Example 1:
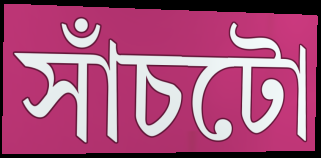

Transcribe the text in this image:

সাঁচটো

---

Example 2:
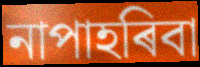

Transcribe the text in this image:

নাপাহৰিবা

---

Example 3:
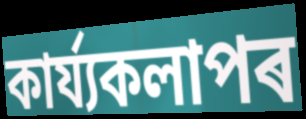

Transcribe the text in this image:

কাৰ্য্যকলাপৰ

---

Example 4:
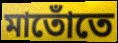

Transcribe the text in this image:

মাতোঁতে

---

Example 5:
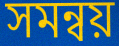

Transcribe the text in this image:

সমন্বয়